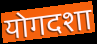
योगदशा